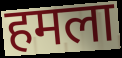
हमला